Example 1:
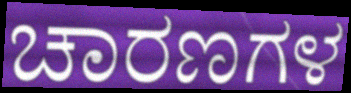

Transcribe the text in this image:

ಚಾರಣಗಳ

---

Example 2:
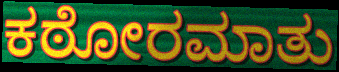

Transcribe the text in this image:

ಕಠೋರಮಾತು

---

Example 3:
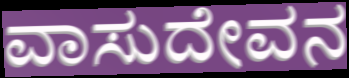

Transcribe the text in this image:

ವಾಸುದೇವನ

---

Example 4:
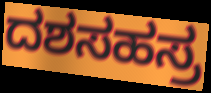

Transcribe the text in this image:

ದಶಸಹಸ್ರ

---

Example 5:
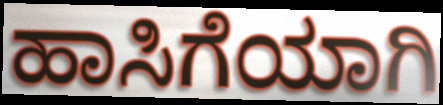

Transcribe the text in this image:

ಹಾಸಿಗೆಯಾಗಿ